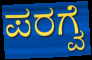
ಪರಗ್ವೆ